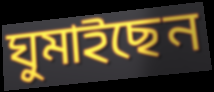
ঘুমাইছেন